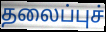
தலைப்புச்